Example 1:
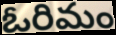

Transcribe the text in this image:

ఓరిమం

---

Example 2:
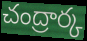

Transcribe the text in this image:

చంద్రార్క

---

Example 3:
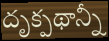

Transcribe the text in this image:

దృక్పథాన్నీ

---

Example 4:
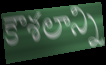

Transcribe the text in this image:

కౌశలాన్ని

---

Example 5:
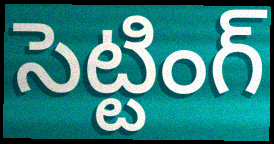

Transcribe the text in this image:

సెట్టింగ్